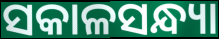
ସକାଳସନ୍ଧ୍ୟା